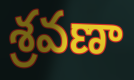
శ్రవణా